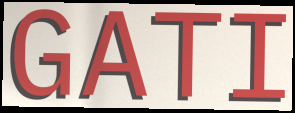
GATI